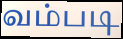
வம்படி